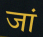
जां